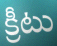
క్రీటు